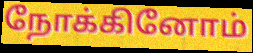
நோக்கினோம்